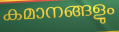
കമാനങ്ങളും